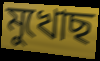
মুখোছ